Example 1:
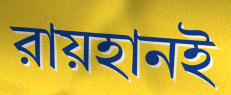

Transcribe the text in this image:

রায়হানই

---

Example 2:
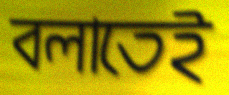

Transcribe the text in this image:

বলাতেই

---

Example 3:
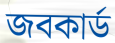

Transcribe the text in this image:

জবকার্ড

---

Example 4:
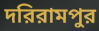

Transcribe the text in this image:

দরিরামপুর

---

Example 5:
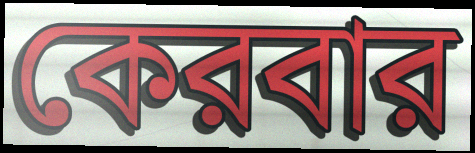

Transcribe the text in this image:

কেরবার